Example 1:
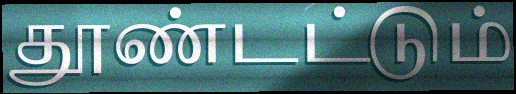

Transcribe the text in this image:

தூண்டட்டும்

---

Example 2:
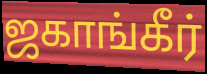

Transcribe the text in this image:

ஜகாங்கீர்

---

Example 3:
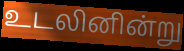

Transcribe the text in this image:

உடலினின்று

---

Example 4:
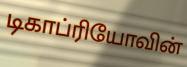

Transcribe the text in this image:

டிகாப்ரியோவின்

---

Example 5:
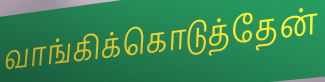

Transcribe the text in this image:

வாங்கிக்கொடுத்தேன்